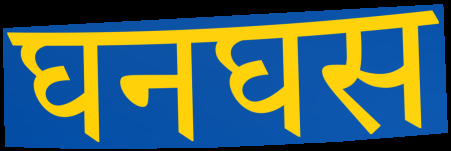
घनघस